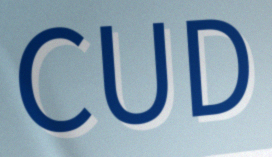
CUD